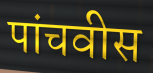
पांचवीस